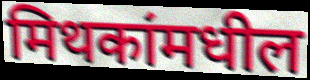
मिथकांमधील